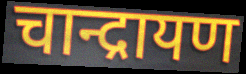
चान्द्रायण